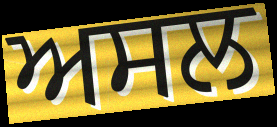
ਅਸਲ